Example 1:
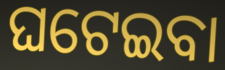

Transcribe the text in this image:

ଘଟେଇବା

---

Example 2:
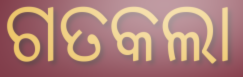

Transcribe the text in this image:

ଗତକଲା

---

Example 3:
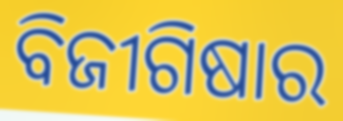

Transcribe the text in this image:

ବିଜୀଗିଷାର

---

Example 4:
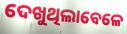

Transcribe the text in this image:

ଦେଖୁଥିଲାବେଳେ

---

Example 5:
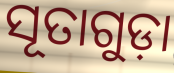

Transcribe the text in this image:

ସୂତାଗୁଡ଼ା